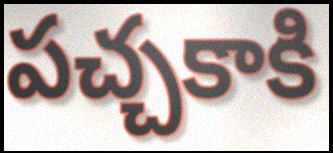
పచ్చకాకి